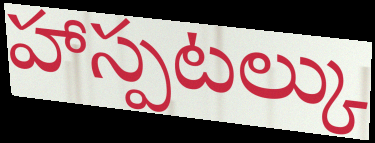
హాస్పటల్కు